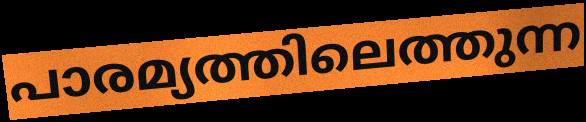
പാരമ്യത്തിലെത്തുന്ന